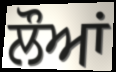
ਲੌਆਂ